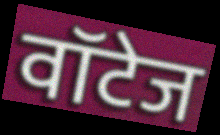
वॉटेज